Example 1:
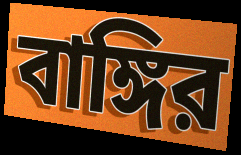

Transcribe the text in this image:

বাঙ্গির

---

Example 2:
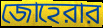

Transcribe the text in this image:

জোহেরার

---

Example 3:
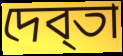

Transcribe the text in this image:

দেব্‌তা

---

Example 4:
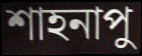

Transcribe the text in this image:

শাহনাপু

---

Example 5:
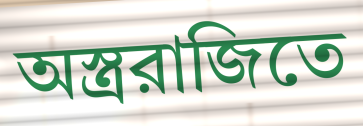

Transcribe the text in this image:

অস্ত্ররাজিতে